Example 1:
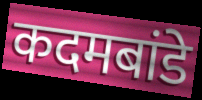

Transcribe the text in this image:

कदमबांडे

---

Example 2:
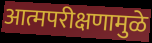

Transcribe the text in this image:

आत्मपरीक्षणामुळे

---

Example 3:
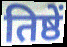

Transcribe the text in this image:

तिष्ठें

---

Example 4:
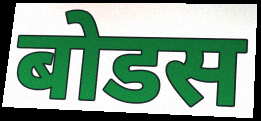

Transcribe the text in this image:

बोडस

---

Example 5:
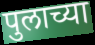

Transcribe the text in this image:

पुलाच्या